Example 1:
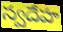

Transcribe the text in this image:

స్వదేహ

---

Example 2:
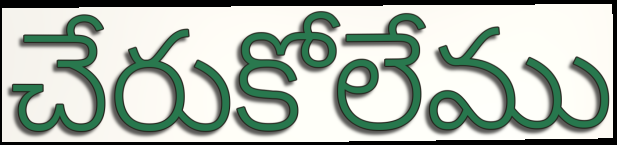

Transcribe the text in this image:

చేరుకోలేము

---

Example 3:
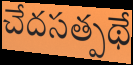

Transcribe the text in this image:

చేదసత్పథే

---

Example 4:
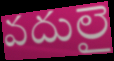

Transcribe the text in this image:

వదులై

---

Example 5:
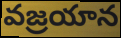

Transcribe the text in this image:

వజ్రయాన